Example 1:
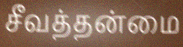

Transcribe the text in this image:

சீவத்தன்மை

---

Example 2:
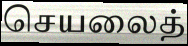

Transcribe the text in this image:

செயலைத்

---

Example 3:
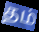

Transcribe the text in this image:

தம்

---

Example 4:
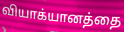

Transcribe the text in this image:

வியாக்யானத்தை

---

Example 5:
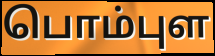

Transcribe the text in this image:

பொம்புள